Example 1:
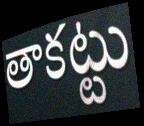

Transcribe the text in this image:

తాకట్టు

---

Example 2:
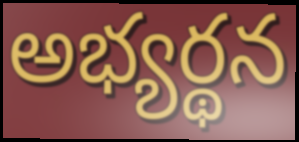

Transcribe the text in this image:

అభ్యర్థన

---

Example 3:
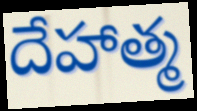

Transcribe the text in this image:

దేహాత్మ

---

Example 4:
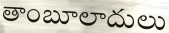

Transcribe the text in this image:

తాంబూలాదులు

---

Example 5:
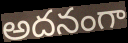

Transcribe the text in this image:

అదనంగా